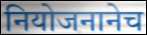
नियोजनानेच